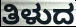
ತಿಳುದ